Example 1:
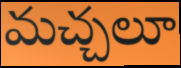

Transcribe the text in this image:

మచ్చలూ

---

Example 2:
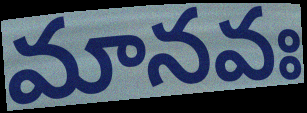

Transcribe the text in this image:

మానవః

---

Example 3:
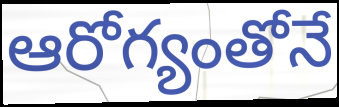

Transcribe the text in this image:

ఆరోగ్యంతోనే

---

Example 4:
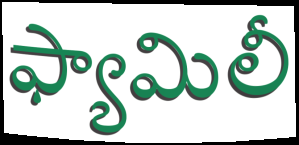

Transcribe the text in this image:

ఫ్యామిలీ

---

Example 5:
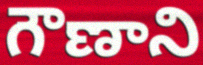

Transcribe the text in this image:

గౌణాని